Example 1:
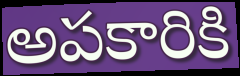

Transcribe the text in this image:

అపకారికి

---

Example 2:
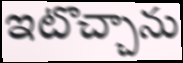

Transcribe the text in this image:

ఇటొచ్చాను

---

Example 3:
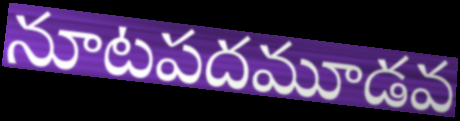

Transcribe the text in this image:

నూటపదమూడవ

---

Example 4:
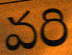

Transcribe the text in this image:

వరి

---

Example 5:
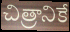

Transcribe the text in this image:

చిత్రానికే